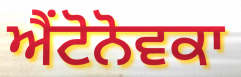
ਐਂਟੋਨੋਵਕਾ